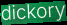
dickory